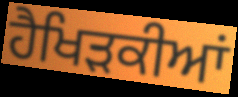
ਹੈਖਿੜਕੀਆਂ